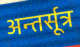
अन्तर्सूत्र